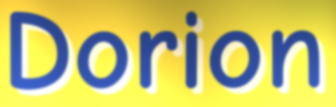
Dorion